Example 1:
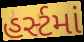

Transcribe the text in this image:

હર્સ્ટમાં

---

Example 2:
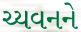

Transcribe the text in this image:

ચ્યવનને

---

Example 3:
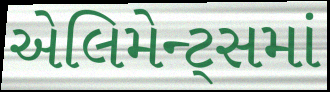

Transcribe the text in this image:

એલિમેન્ટ્સમાં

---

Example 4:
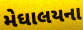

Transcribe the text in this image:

મેઘાલયના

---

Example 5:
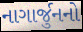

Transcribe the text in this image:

નાગાર્જુનનો